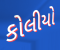
કોલીયો